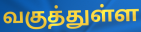
வகுத்துள்ள